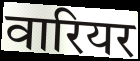
वारियर